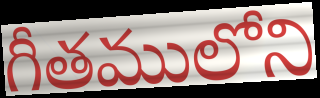
గీతములోని